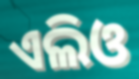
ଏଲିଓ